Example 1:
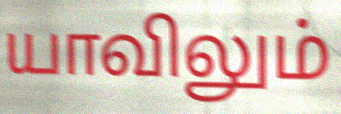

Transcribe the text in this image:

யாவிலும்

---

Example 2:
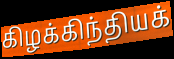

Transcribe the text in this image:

கிழக்கிந்தியக்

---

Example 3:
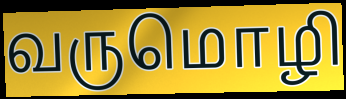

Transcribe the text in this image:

வருமொழி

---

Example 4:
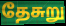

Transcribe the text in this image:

தேசுறு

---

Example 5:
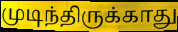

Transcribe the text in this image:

முடிந்திருக்காது